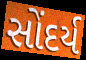
સોંદર્ય